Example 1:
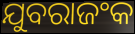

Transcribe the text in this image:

ଯୁବରାଜଂକ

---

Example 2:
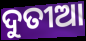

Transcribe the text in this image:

ଦୁତୀଆ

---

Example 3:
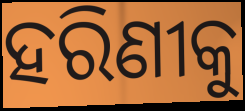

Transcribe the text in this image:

ହରିଣୀକୁ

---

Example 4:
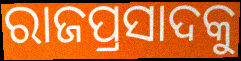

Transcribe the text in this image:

ରାଜପ୍ରସାଦକୁ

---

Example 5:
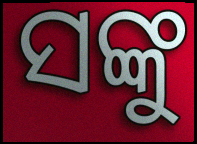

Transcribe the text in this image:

ସଙ୍କୁ